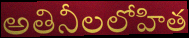
అతినీలలోహిత